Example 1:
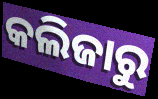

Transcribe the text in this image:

କଲିଜାରୁ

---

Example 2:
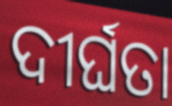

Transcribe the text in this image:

ଦୀର୍ଘତା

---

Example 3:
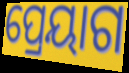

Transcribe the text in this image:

ପ୍ରେୟାଗ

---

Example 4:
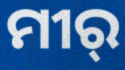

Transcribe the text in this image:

ମୀର୍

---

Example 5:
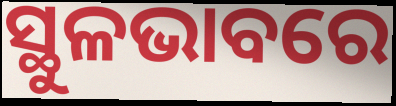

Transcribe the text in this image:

ସ୍ଥୁଳଭାବରେ